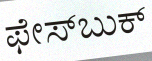
ಫೇಸ್‌ಬುಕ್